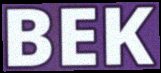
BEK